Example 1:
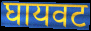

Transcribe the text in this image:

घायवट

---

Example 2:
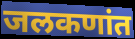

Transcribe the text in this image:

जलकणांत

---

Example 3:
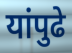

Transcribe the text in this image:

यांपुढे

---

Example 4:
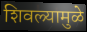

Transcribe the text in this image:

शिवल्यामुळे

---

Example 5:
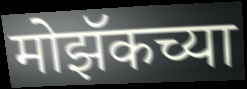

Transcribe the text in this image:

मोझॅकच्या